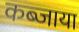
कब्जाया